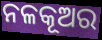
ନଳକୂଅର